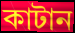
কাটান